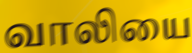
வாலியை